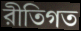
রীতিগত